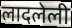
लादलेली